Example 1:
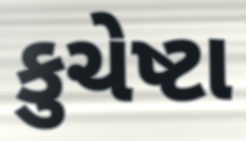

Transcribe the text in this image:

કુચેષ્ટા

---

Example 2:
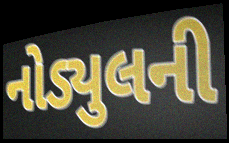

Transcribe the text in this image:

નોડ્યુલની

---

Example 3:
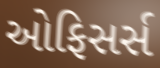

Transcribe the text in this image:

ઓફિસર્સ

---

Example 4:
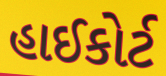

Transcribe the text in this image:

હાઈકોર્ટ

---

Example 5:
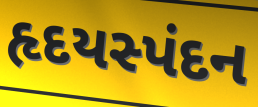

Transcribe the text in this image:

હૃદયસ્પંદન